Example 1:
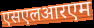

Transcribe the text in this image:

एसएलआरएम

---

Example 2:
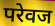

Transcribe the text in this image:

परेवज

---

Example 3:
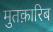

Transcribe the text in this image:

मुतक़ारिब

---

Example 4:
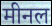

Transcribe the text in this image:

मीनल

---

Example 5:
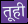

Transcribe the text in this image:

तूही